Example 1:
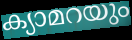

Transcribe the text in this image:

ക്യാമറയും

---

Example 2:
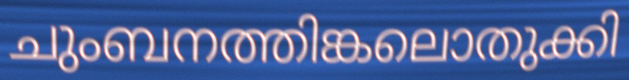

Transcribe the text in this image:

ചുംബനത്തിങ്കലൊതുക്കി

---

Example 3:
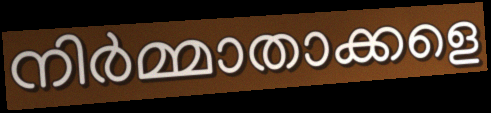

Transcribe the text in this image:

നിർമ്മാതാക്കളെ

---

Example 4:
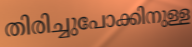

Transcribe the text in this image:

തിരിച്ചുപോക്കിനുള്ള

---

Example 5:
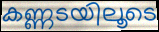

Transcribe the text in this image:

കണ്ണടയിലൂടെ